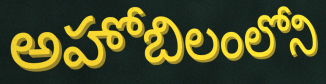
అహోబిలంలోని